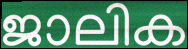
ജാലിക